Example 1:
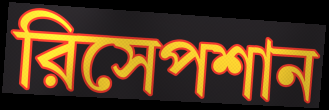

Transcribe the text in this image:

রিসেপশান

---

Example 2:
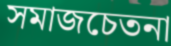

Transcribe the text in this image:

সমাজচেতনা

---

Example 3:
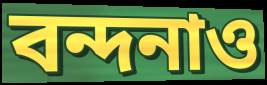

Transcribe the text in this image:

বন্দনাও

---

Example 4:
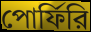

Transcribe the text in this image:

পোর্ফিরি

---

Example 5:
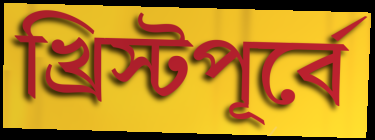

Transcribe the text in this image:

খ্রিস্টপূর্বে